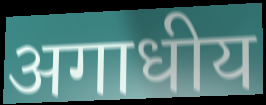
अगाधीय